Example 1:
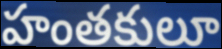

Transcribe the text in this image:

హంతకులూ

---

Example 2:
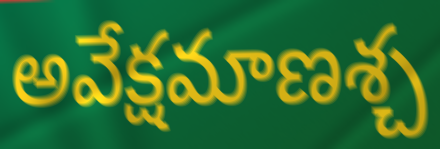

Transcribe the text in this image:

అవేక్షమాణశ్చ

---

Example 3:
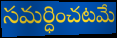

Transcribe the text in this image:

సమర్ధించటమే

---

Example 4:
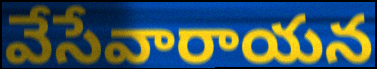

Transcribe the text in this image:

వేసేవారాయన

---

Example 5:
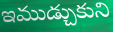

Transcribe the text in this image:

ఇముడ్చుకుని